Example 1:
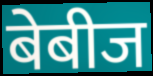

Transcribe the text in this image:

बेबीज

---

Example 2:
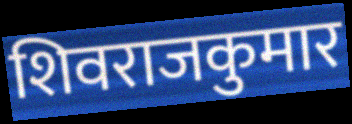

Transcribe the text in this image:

शिवराजकुमार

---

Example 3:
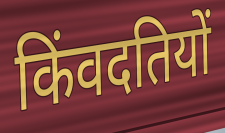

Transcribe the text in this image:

किंवदतियों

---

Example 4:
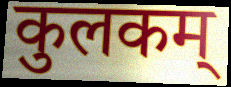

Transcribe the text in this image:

कुलकम्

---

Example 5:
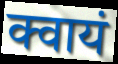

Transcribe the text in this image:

क्वायं